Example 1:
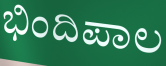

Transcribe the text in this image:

ಭಿಂದಿಪಾಲ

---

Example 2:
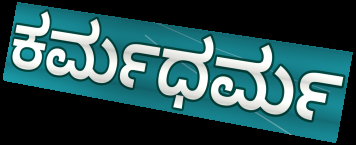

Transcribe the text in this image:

ಕರ್ಮಧರ್ಮ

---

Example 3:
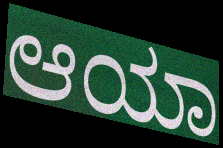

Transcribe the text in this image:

ಆಯಾ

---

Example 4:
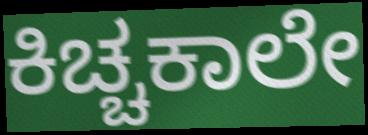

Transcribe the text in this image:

ಕಿಚ್ಚಕಾಲೇ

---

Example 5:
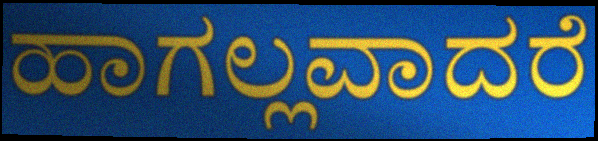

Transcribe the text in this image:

ಹಾಗಲ್ಲವಾದರೆ